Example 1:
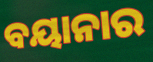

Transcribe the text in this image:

ବୟାନାର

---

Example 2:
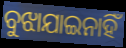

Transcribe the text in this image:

ବୁଝାଯାଇନାହିଁ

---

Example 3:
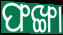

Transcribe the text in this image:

ଫଙ୍ଖା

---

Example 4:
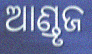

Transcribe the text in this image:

ଆଣ୍ଡୃଜ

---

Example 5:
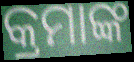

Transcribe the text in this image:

କ୍ରମାଙ୍କ